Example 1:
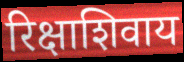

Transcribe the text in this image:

रिक्षाशिवाय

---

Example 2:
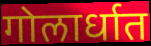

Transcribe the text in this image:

गोलार्धात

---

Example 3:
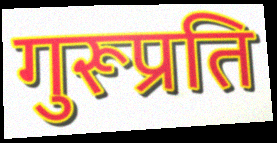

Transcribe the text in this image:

गुरूप्रति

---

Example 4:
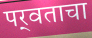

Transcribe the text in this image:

पर्वताचा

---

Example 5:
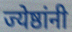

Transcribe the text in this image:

ज्येष्ठांनी